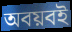
অবয়বই